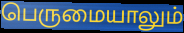
பெருமையாலும்